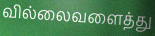
வில்லைவளைத்து